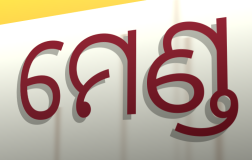
ମେଣ୍ଡ